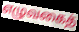
எழுவகைத்